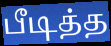
பீடித்த